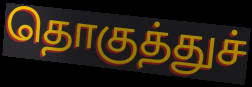
தொகுத்துச்